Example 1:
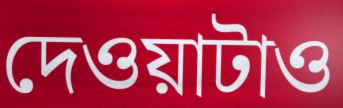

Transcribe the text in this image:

দেওয়াটাও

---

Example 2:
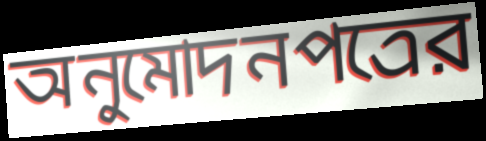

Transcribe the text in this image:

অনুমোদনপত্রের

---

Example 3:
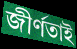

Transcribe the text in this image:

জীর্ণতাই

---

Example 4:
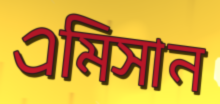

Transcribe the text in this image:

এমিসান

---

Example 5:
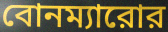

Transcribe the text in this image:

বোনম্যারোর